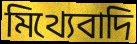
মিথ্যেবাদি